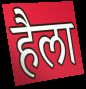
हैला